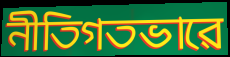
নীতিগতভাৱে